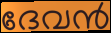
ദേവൻ